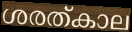
ശരത്കാല